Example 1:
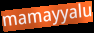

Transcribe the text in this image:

mamayyalu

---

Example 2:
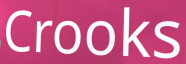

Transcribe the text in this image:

Crooks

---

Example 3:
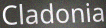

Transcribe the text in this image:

Cladonia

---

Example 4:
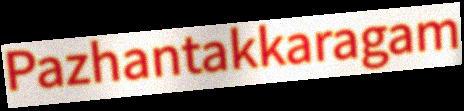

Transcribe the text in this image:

Pazhantakkaragam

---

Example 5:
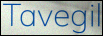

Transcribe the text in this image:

Tavegil